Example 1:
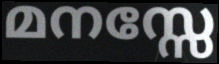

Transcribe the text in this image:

മനസ്സേ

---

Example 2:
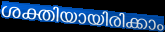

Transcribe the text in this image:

ശക്തിയായിരിക്കാം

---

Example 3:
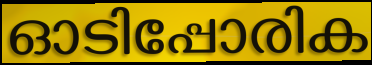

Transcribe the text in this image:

ഓടിപ്പോരിക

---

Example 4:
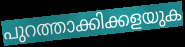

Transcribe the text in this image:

പുറത്താക്കിക്കളയുക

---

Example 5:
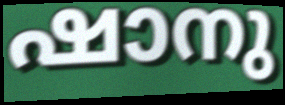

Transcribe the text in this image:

ഷാനു